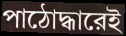
পাঠোদ্ধারেই